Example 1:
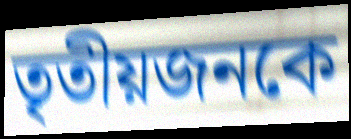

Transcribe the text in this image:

তৃতীয়জনকে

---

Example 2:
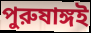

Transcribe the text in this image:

পুরুষাঙ্গই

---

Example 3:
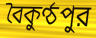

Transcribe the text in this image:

বৈকুণ্ঠপুর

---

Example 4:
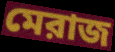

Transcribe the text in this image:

মেরাজ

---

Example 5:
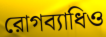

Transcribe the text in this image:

রোগব্যাধিও